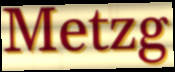
Metzg